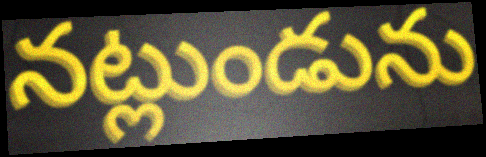
నట్లుండును